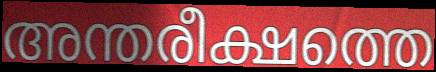
അന്തരീക്ഷത്തെ